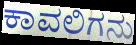
ಕಾವಲಿಗನು